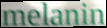
melanin